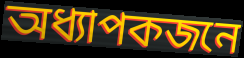
অধ্যাপকজনে